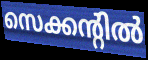
സെക്കന്റിൽ